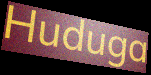
Huduga